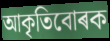
আকৃতিবোৰক